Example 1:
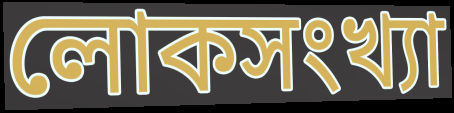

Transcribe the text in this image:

লোকসংখ্যা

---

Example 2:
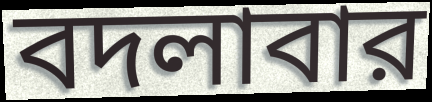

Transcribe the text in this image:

বদলাবার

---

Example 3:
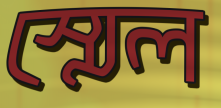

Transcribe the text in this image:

স্মেল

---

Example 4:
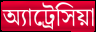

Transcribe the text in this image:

অ্যাট্রেসিয়া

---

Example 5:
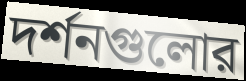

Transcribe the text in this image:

দর্শনগুলোর